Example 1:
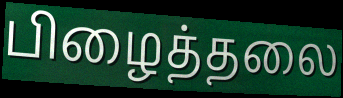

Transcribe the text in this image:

பிழைத்தலை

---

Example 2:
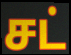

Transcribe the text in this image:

சட்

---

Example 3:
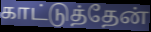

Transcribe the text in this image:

காட்டுத்தேன்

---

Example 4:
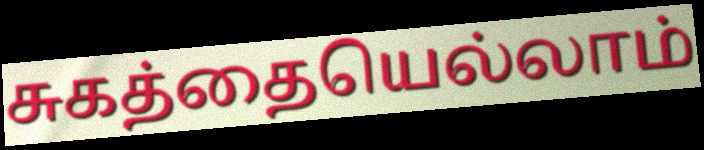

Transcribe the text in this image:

சுகத்தையெல்லாம்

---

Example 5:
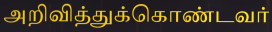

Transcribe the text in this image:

அறிவித்துக்கொண்டவர்